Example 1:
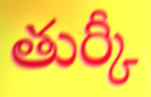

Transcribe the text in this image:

తుర్కీ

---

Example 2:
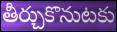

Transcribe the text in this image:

తీర్చుకొనుటకు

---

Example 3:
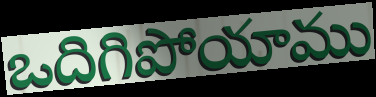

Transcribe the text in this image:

ఒదిగిపోయాము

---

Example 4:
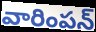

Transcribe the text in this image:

వారింపన్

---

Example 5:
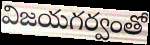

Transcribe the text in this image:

విజయగర్వంతో